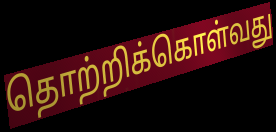
தொற்றிக்கொள்வது